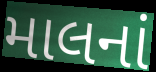
માલનાં